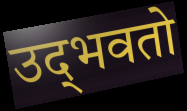
उद्‌भवतो